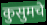
कुसुमचे